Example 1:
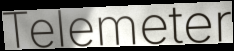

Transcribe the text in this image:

Telemeter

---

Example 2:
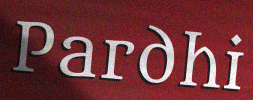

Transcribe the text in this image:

Pardhi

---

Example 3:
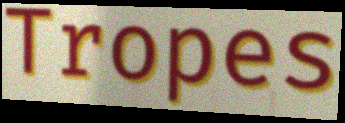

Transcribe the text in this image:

Tropes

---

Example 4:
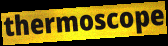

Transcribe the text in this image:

thermoscope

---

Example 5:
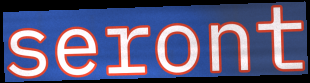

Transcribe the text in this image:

seront